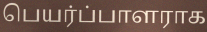
பெயர்ப்பாளராக